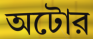
অটোর